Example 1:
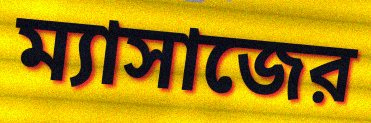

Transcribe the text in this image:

ম্যাসাজের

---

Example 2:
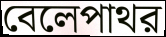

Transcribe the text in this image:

বেলেপাথর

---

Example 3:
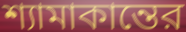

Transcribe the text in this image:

শ্যামাকান্তের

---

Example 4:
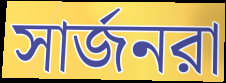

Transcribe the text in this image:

সার্জনরা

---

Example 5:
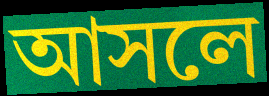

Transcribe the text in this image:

আসলে